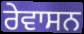
ਰੇਵਾਸਨ